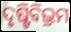
ଦୃଷ୍ଟିବିଭ୍ରମ